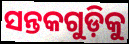
ସନ୍ତକଗୁଡ଼ିକୁ